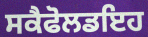
ਸਕੈਫੋਲਡਇਹ